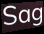
Sag